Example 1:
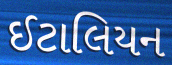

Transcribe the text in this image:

ઈટાલિયન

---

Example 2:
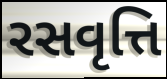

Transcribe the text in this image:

રસવૃત્તિ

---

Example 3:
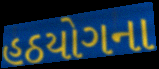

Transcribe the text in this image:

હઠયોગના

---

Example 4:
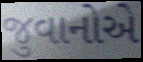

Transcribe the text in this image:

જુવાનોએ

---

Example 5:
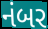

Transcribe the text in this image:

નંબર